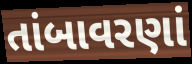
તાંબાવરણાં